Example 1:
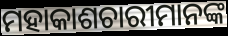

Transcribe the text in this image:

ମହାକାଶଚାରୀମାନଙ୍କ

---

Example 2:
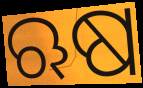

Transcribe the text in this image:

ଋଷ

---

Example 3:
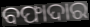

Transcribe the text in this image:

ବଫାଦାର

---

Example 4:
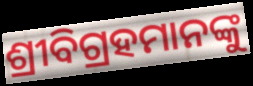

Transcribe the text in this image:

ଶ୍ରୀବିଗ୍ରହମାନଙ୍କୁ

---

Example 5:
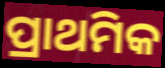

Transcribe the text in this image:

ପ୍ରାଥମିକ